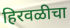
हिरवळीचा